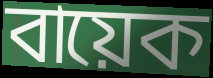
বায়েক